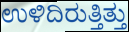
ಉಳಿದಿರುತ್ತಿತ್ತು